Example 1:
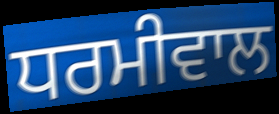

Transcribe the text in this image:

ਧਰਮੀਵਾਲ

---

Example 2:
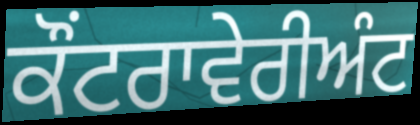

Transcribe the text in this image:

ਕੌਂਟਰਾਵੇਰੀਅੰਟ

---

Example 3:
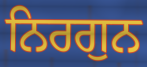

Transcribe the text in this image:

ਨਿਰਗੁਨ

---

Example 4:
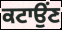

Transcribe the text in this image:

ਕਟਾਉਂਣ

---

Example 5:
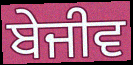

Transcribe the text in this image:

ਬੇਜੀਵ